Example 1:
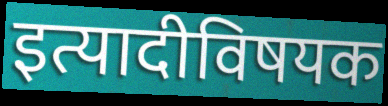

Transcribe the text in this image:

इत्यादीविषयक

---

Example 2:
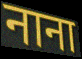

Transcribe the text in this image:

नाना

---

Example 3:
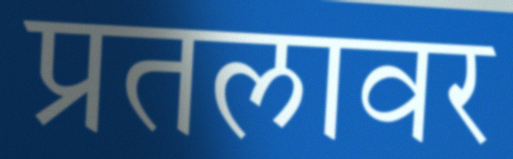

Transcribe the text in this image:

प्रतलावर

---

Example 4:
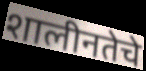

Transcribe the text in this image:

शालीनतेचे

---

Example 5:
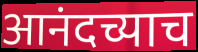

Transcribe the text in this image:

आनंदच्याच